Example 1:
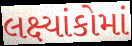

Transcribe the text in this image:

લક્ષ્યાંકોમાં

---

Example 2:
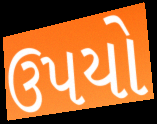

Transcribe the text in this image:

ઉપયો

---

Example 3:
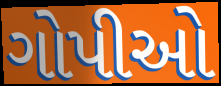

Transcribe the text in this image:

ગોપીઓ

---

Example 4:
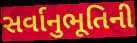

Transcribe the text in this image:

સર્વાનુભૂતિની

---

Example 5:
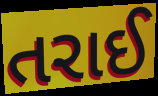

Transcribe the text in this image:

તરાઈ